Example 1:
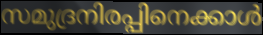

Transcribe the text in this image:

സമുദ്രനിരപ്പിനെക്കാൾ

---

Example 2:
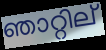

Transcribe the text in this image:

ഞാറ്റില്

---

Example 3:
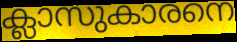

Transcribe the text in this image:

ക്ലാസുകാരനെ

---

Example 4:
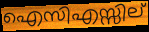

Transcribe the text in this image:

ഐസിഎസ്സില്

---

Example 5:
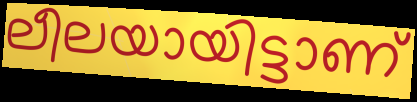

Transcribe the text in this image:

ലീലയായിട്ടാണ്